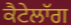
ਕੈਟੇਲਾੱਗ